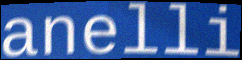
anelli